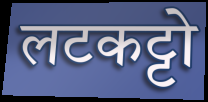
लटकट्टो